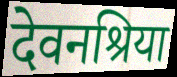
देवनश्रिया